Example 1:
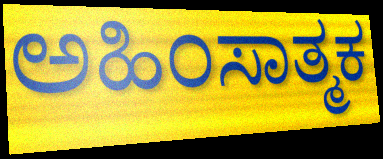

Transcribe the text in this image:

ಅಹಿಂಸಾತ್ಮಕ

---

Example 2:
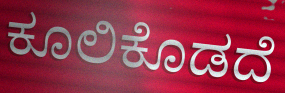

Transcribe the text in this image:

ಕೂಲಿಕೊಡದೆ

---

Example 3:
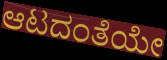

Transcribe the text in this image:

ಆಟದಂತೆಯೇ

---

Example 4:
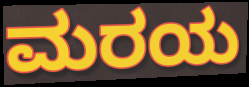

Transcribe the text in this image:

ಮರಯ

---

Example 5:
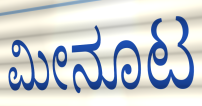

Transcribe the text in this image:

ಮೀನೂಟ